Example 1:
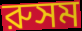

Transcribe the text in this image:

রুসম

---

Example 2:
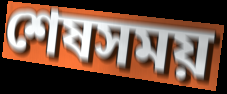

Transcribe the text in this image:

শেষসময়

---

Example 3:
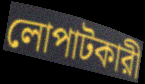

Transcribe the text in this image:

লোপাটকারী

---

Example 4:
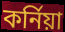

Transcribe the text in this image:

কর্নিয়া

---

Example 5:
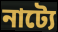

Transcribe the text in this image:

নাট্যে